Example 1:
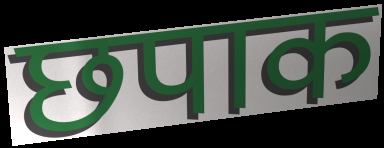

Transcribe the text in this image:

छपाक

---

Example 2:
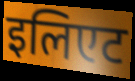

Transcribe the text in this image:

इलिएट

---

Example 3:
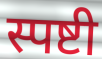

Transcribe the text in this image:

स्पष्टी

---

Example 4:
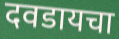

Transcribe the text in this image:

दवडायचा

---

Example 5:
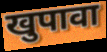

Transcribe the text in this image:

खुपावा